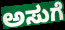
ಅಸುಗೆ